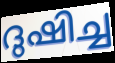
ദുഷിച്ച